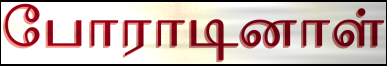
போராடினாள்